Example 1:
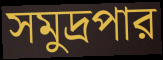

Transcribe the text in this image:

সমুদ্রপার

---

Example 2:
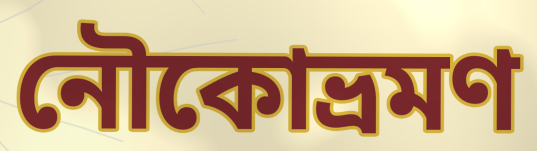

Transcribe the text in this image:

নৌকোভ্রমণ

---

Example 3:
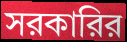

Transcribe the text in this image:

সরকারির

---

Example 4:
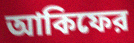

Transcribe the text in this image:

আকিফের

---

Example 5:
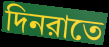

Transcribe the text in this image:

দিনরাতে